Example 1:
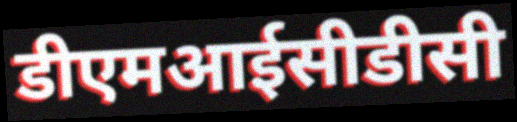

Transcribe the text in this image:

डीएमआईसीडीसी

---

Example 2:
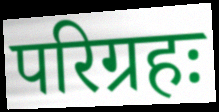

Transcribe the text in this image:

परिग्रहः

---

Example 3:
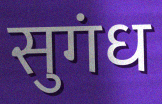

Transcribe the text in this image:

सुगंध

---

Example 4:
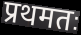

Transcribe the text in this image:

प्रथमतः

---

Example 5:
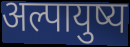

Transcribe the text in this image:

अल्पायुष्य